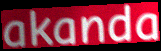
akanda